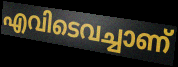
എവിടെവച്ചാണ്